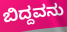
ಬಿದ್ದವನು